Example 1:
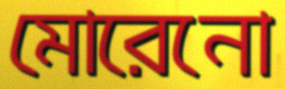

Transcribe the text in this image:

মোরেনো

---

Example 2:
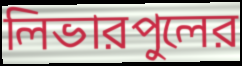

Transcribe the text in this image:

লিভারপুলের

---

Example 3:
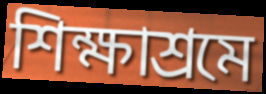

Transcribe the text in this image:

শিক্ষাশ্রমে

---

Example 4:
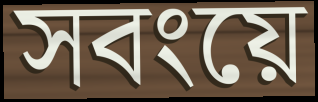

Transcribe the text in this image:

সবংয়ে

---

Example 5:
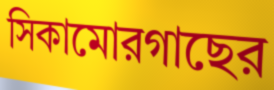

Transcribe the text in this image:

সিকামোরগাছের